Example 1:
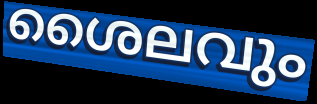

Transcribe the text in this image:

ശൈലവും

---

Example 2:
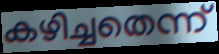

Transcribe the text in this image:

കഴിച്ചതെന്ന്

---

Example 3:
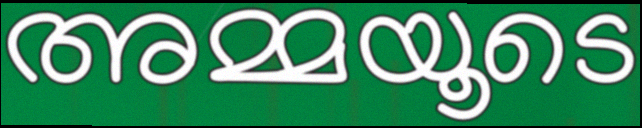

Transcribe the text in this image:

അമ്മയൂടെ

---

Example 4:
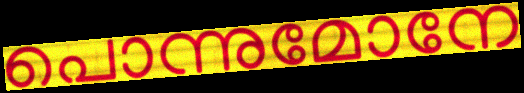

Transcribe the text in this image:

പൊന്നുമോനേ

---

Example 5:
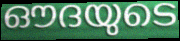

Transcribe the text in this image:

ഔദയുടെ